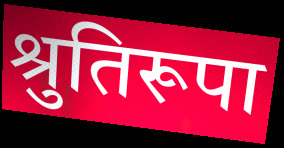
श्रुतिरूपा